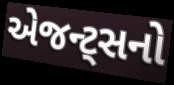
એજન્ટ્સનો